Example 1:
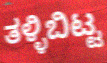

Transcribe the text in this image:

ತಳ್ಳಿಬಿಟ್ಟ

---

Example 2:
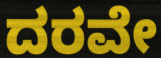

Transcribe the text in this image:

ದರವೇ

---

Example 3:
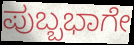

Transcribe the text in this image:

ಪುಬ್ಬಭಾಗೇ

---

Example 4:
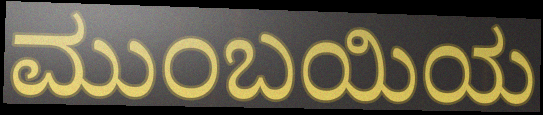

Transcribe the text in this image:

ಮುಂಬಯಿಯ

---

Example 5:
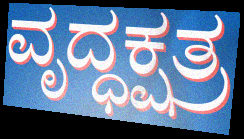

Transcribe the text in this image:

ವೃದ್ಧಕ್ಷತ್ರ